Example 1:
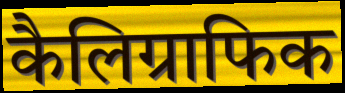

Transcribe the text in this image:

कैलिग्राफिक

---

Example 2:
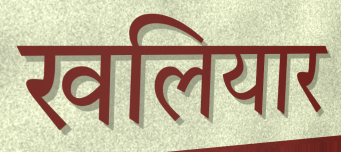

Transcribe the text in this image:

खलियार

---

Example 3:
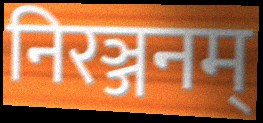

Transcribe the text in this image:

निरञ्जनम्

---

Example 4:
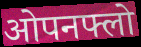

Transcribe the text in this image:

ओपनफ्लो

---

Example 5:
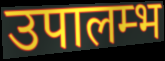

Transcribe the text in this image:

उपालम्भ